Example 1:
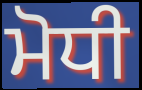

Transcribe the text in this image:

ਮੋਧੀ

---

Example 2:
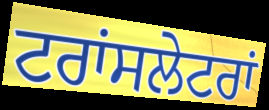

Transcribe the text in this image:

ਟਰਾਂਸਲੇਟਰਾਂ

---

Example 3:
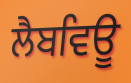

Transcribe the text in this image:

ਲੈਬਵਿਊ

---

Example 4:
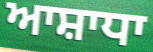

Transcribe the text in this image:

ਆਸ਼ਾਧਾ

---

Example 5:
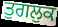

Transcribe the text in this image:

ਤੁਗਲੁਕ